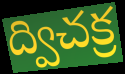
ద్విచక్ర